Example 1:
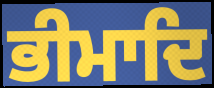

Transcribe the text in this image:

ਭੀਮਾਦਿ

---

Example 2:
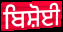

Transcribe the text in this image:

ਬਿਸ਼ੋਈ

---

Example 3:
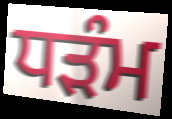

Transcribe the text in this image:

ਧੜੰਮ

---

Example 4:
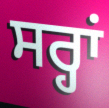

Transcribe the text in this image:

ਸਰ੍ਹਾਂ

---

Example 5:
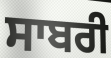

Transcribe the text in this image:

ਸਾਬਰੀ